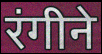
रंगीने